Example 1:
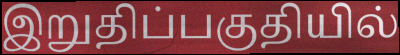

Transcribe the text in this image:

இறுதிப்பகுதியில்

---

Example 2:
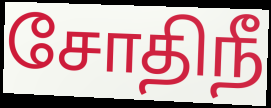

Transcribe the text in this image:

சோதிநீ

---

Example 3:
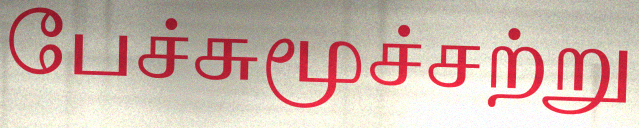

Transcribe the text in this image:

பேச்சுமூச்சற்று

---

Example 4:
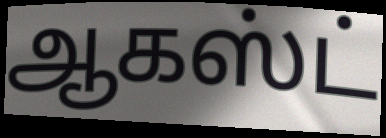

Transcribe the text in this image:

ஆகஸ்ட்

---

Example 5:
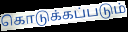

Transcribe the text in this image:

கொடுக்கப்படும்